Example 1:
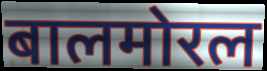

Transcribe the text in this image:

बालमोरल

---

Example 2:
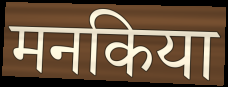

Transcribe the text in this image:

मनकिया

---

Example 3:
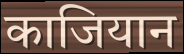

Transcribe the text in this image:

काजियान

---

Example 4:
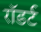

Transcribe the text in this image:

रॉडर्ट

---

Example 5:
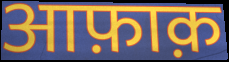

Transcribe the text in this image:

आफ़ाक़